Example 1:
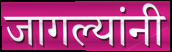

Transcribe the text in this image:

जागल्यांनी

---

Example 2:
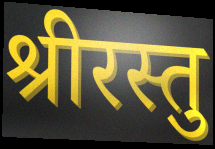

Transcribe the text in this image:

श्रीरस्तु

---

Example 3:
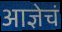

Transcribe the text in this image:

आज्ञेचं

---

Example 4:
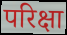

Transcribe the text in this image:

परिक्षा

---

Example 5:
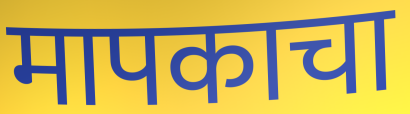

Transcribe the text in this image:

मापकाचा